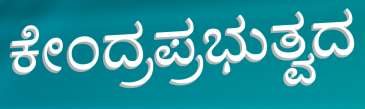
ಕೇಂದ್ರಪ್ರಭುತ್ವದ